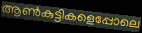
ആൺകുട്ടികളെപ്പോലെ